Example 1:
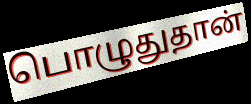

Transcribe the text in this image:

பொழுதுதான்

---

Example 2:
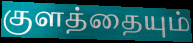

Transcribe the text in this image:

குளத்தையும்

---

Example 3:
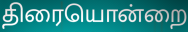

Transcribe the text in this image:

திரையொன்றை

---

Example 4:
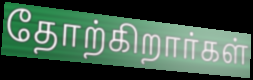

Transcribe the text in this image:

தோற்கிறார்கள்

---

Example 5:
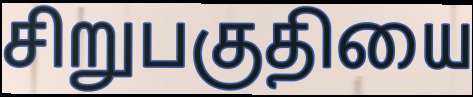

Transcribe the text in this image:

சிறுபகுதியை